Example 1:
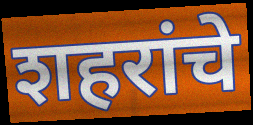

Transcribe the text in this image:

शहरांचे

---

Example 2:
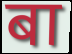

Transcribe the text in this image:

बा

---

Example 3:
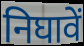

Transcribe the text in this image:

निघावें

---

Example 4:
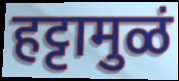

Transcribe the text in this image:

हट्टामुळं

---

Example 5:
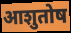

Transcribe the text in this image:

आशुतोष